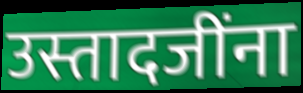
उस्तादजींना